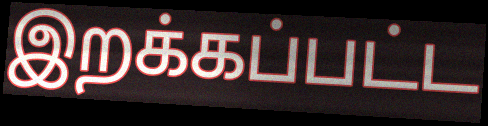
இறக்கப்பட்ட